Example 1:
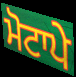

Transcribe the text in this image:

ਮੋਟਾਪੇ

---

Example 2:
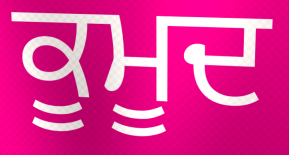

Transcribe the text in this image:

ਕੂਮੂਦ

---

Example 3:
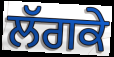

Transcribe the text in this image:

ਲੱਗਕੇ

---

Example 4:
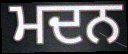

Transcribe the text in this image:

ਮਦਨ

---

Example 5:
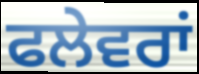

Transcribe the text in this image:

ਫਲੇਵਰਾਂ